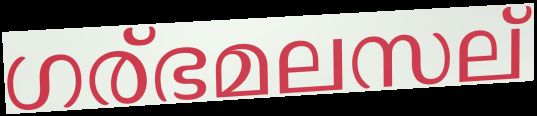
ഗര്ഭമലസല്